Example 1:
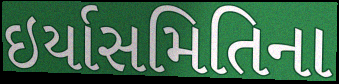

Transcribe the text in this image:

ઇર્યાસમિતિના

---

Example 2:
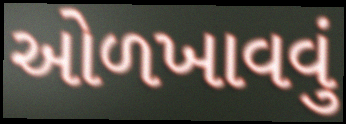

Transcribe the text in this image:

ઓળખાવવું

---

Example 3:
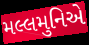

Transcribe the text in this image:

મલ્લમુનિએ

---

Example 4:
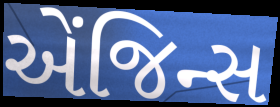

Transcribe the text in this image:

એંજિન્સ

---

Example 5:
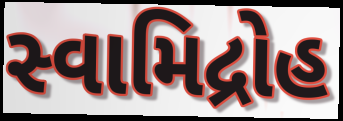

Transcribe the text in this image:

સ્વામિદ્રોહ